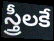
స్త్రీలకే